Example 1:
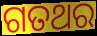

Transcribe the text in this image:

ଗତଥର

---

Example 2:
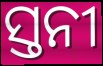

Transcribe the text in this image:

ସ୍ତନୀ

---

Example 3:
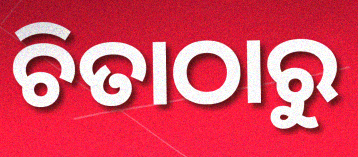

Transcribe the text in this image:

ଚିତାଠାରୁ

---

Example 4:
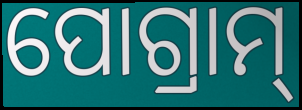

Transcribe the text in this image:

ପୋଗ୍ରାମ୍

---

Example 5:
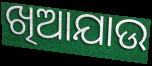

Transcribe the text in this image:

ଖିଆଯାଉ